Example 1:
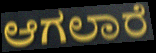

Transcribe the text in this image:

ಆಗಲಾರೆ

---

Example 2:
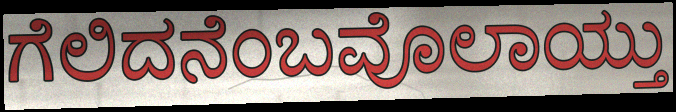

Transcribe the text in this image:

ಗೆಲಿದನೆಂಬವೊಲಾಯ್ತು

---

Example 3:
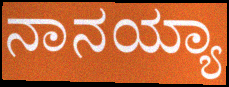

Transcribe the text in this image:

ನಾನಯ್ಯಾ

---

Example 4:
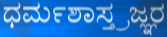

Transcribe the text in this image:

ಧರ್ಮಶಾಸ್ತ್ರಜ್ಞರ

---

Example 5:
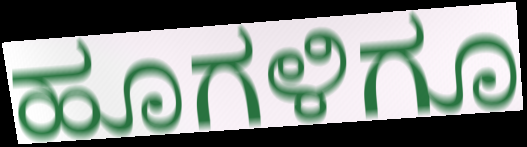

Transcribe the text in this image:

ಹೂಗಳಿಗೂ